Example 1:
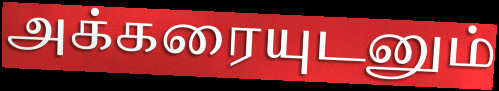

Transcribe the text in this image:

அக்கரையுடனும்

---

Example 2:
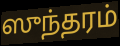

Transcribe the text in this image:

ஸுந்தரம்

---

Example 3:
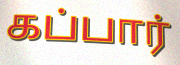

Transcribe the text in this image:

கப்பார்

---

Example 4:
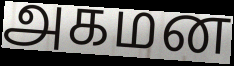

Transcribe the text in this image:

அகமன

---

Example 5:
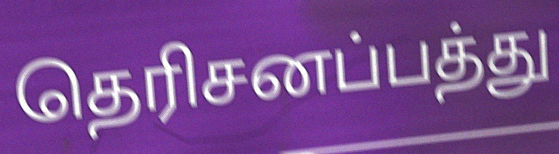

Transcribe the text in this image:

தெரிசனப்பத்து